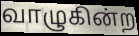
வாழுகின்ற